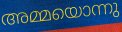
അമ്മയൊന്നു